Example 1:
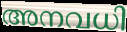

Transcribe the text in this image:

അനവധി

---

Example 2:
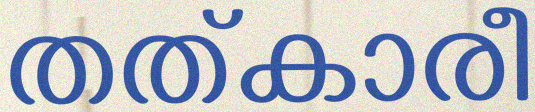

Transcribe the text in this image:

തത്കാരീ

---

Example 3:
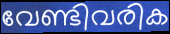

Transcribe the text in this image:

വേണ്ടിവരിക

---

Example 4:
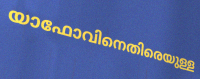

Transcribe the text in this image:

യാഫോവിനെതിരെയുള്ള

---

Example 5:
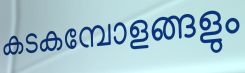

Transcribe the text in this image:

കടകമ്പോളങ്ങളും